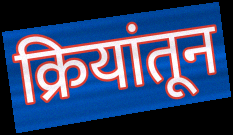
क्रियांतून